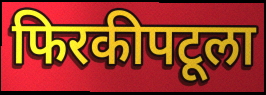
फिरकीपटूला